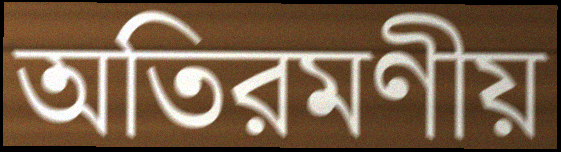
অতিরমণীয়